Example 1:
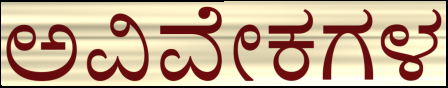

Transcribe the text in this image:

ಅವಿವೇಕಗಳ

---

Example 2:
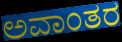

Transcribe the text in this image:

ಅವಾಂತರ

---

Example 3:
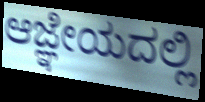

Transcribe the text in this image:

ಆಜ್ಞೇಯದಲ್ಲಿ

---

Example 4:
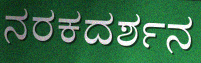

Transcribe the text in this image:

ನರಕದರ್ಶನ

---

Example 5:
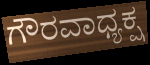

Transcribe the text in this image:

ಗೌರವಾಧ್ಯಕ್ಷ